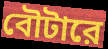
বৌটারে